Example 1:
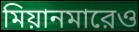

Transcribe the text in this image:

মিয়ানমারেও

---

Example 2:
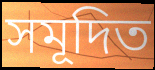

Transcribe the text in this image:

সমূদিত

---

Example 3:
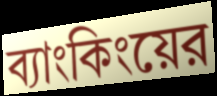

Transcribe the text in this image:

ব্যাংকিংয়ের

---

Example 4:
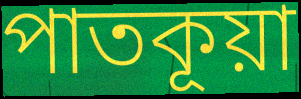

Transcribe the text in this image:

পাতকূয়া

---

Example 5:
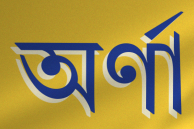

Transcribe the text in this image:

অর্ণা